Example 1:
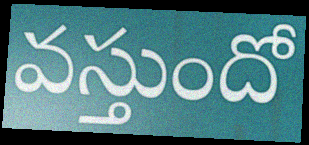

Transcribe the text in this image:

వస్తుందో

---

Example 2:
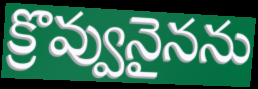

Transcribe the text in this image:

క్రొవ్వునైనను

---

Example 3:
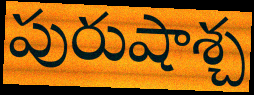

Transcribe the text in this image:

పురుషాశ్చ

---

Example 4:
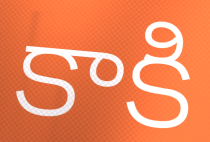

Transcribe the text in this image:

కాకి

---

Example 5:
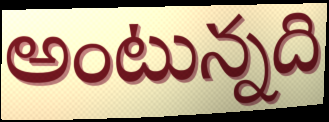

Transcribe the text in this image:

అంటున్నది